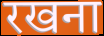
रखना